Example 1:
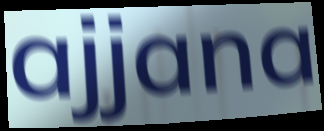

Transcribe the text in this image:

ajjana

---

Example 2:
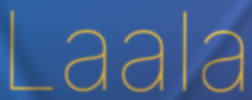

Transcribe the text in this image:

Laala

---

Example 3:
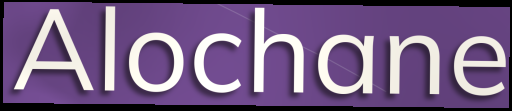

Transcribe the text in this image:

Alochane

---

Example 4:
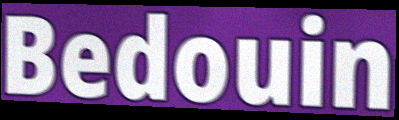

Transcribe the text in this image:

Bedouin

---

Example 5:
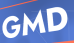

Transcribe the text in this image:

GMD